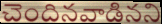
చెందినవాడినని